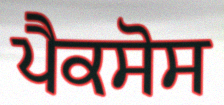
ਪੈਕਸੋਸ